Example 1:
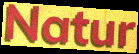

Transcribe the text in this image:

Natur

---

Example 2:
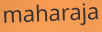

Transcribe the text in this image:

maharaja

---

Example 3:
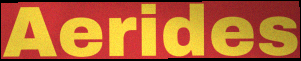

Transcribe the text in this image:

Aerides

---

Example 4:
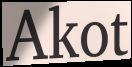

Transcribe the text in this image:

Akot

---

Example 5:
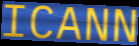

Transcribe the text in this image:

ICANN